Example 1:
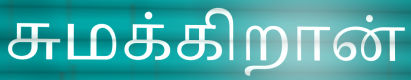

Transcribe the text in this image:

சுமக்கிறான்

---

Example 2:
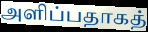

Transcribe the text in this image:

அளிப்பதாகத்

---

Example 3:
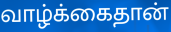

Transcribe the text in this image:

வாழ்க்கைதான்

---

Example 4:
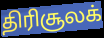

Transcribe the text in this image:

திரிசூலக்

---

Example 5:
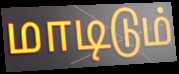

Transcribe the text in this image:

மாடிடும்